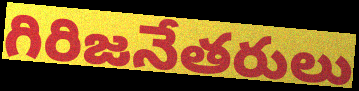
గిరిజనేతరులు